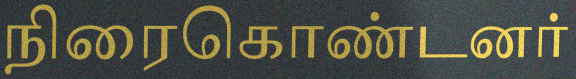
நிரைகொண்டனர்